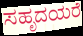
ಸಹೃದಯರೆ